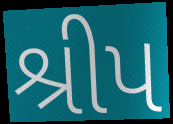
શ્રીપ